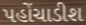
પહોંચાડીશ